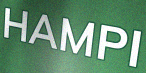
HAMPI